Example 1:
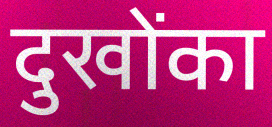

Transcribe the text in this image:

दुखोंका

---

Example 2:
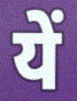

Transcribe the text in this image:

यें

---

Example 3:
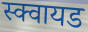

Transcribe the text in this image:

स्क्वायड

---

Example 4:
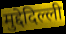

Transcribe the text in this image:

मुद्देदिल्ली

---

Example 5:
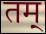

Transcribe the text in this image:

तम्